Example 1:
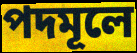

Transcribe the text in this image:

পদমূলে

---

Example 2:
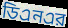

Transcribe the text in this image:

ডিএনএর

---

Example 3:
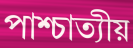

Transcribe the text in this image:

পাশ্চাত্যীয়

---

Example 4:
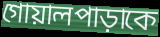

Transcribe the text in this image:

গোয়ালপাড়াকে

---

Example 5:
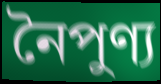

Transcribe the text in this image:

নৈপুণ্য